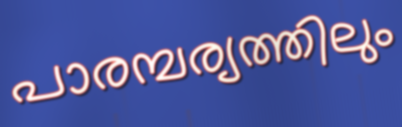
പാരമ്പര്യത്തിലും